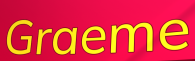
Graeme